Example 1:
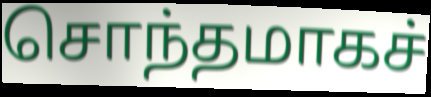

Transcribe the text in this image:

சொந்தமாகச்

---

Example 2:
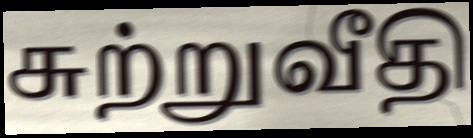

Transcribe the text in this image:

சுற்றுவீதி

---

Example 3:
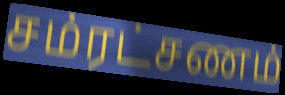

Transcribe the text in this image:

சம்ரட்சணம்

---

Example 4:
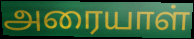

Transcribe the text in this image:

அரையாள்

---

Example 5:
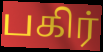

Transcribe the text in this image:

பகிர்